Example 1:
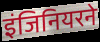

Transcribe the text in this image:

इंजिनियरने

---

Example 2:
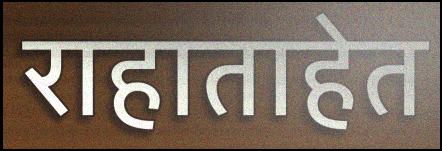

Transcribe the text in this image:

राहाताहेत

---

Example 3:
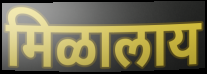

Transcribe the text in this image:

मिळालाय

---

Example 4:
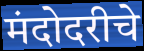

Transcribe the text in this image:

मंदोदरीचे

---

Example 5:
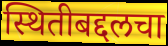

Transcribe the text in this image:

स्थितीबद्दलचा